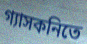
গ্যাসকনিতে